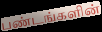
பண்டங்களின்